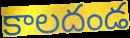
కాలదండ